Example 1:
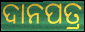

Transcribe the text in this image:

ଦାନପତ୍ର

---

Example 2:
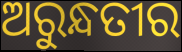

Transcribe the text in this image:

ଅରୁନ୍ଧତୀର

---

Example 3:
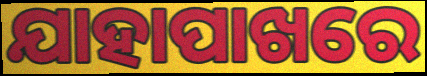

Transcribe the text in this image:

ଯାହାପାଖରେ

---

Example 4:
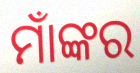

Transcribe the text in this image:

ମାଁଙ୍କର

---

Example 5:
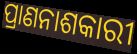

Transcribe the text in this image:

ପ୍ରାଣନାଶକାରୀ